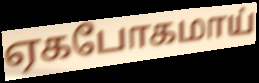
ஏகபோகமாய்